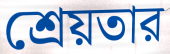
শ্রেয়তার